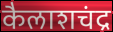
कैलाशचंद्र